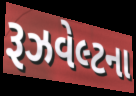
રૂઝવેલ્ટના